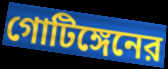
গোটিঙ্গেনের